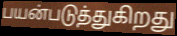
பயன்படுத்துகிறது